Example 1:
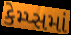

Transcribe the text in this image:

કેમ્પ્સમાં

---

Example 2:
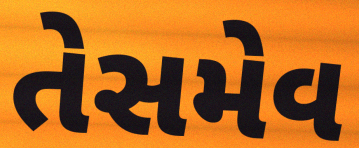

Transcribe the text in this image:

તેસમેવ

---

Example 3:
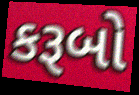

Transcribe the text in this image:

કરૂબો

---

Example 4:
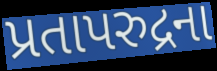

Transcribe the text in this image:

પ્રતાપરુદ્રના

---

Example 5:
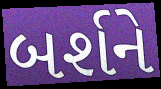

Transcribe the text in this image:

બર્શને